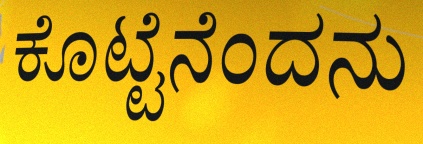
ಕೊಟ್ಟೆನೆಂದನು